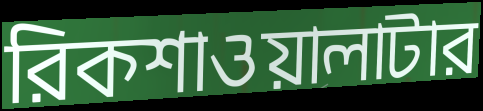
রিকশাওয়ালাটার